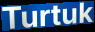
Turtuk